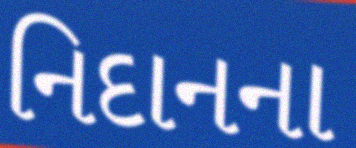
નિદાનના